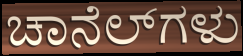
ಚಾನೆಲ್‌ಗಳು